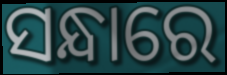
ସନ୍ଧାରେ